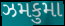
ઝમકુમા